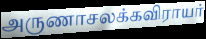
அருணாசலக்கவிராயர்